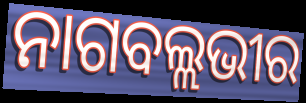
ନାଗବଲ୍ଲଭୀର